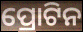
ପ୍ରୋଟିନ